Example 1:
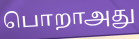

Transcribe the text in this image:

பொறாஅது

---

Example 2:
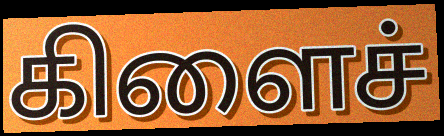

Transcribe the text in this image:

கிளைச்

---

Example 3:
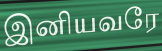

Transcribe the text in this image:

இனியவரே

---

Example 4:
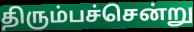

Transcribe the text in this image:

திரும்பச்சென்று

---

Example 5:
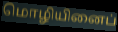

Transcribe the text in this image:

மொழியினைப்